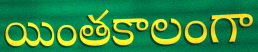
యింతకాలంగా